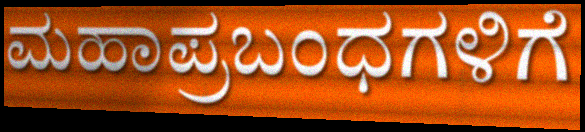
ಮಹಾಪ್ರಬಂಧಗಳಿಗೆ